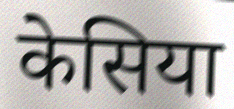
केसिया